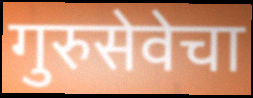
गुरुसेवेचा